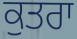
ਕੁਤਰਾ